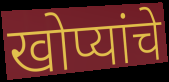
खोप्यांचे